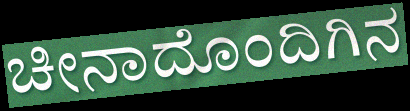
ಚೀನಾದೊಂದಿಗಿನ